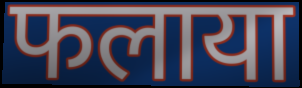
फलाया